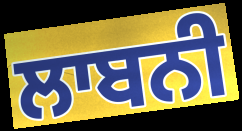
ਲਾਬਨੀ